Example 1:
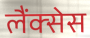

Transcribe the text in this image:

लैंक्‍सेस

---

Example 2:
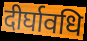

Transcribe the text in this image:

दीर्घावधि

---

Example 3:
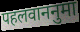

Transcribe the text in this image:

पहलवाननुमा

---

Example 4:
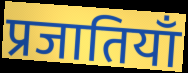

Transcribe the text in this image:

प्रजातियाँ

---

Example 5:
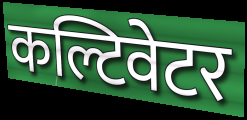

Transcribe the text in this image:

कल्टिवेटर